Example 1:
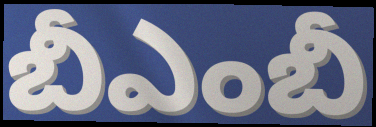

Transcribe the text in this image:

బీఎంబీ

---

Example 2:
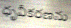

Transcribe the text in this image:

ధృవీకరణను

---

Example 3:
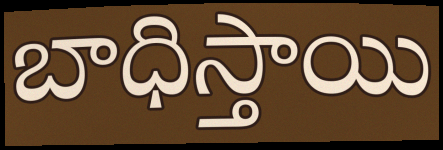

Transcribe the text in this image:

బాధిస్తాయి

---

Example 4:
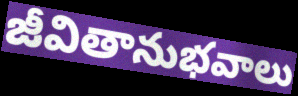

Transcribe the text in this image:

జీవితానుభవాలు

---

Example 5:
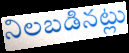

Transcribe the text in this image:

నిలబడినట్లు